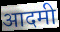
आदमी